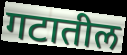
गटातील